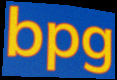
bpg